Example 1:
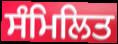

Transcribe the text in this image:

ਸੰਮਿਲਿਤ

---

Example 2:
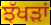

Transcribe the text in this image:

ਝੱਖੜਾਂ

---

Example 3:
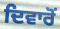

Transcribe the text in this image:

ਦਿਵਾਰੋਂ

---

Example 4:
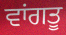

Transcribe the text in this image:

ਵਾਂਗਤੂ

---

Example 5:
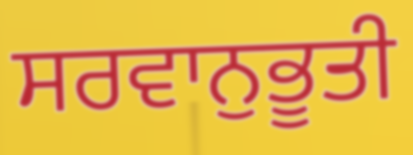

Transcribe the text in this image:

ਸਰਵਾਨੁਭੂਤੀ